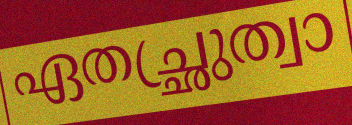
ഏതച്ഛ്രുത്വാ